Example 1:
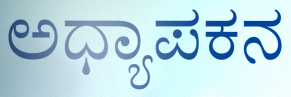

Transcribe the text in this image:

ಅಧ್ಯಾಪಕನ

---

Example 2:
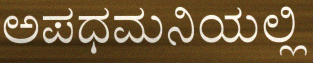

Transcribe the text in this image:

ಅಪಧಮನಿಯಲ್ಲಿ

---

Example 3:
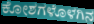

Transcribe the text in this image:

ಕೋಶಗಳೊಳಗಿನ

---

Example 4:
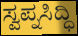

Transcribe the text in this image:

ಸ್ವಪ್ನಸಿದ್ಧಿ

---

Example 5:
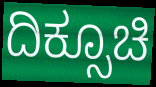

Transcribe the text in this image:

ದಿಕ್ಸೂಚಿ